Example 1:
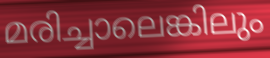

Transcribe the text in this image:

മരിച്ചാലെങ്കിലും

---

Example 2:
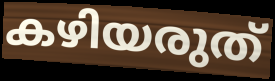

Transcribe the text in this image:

കഴിയരുത്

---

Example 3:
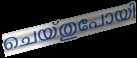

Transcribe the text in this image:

ചെയ്തുപോയി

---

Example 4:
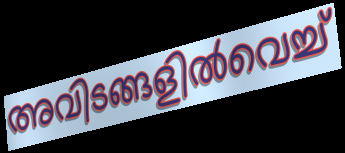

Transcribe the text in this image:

അവിടങ്ങളിൽവെച്ച്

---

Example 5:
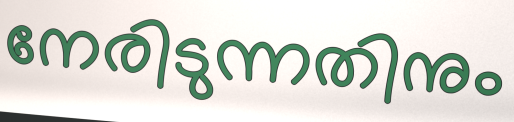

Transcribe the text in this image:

നേരിടുന്നതിനും